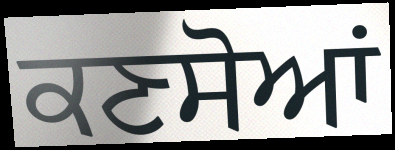
ਕਣਸੋਆਂ